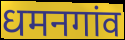
धमनगांव